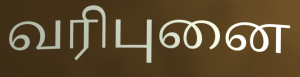
வரிபுனை